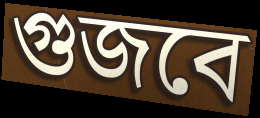
গুজবে